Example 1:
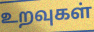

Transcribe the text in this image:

உறவுகள்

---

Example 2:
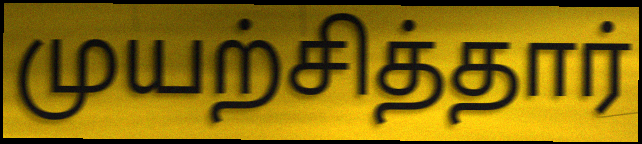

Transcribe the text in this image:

முயற்சித்தார்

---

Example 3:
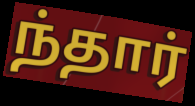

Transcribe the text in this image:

ந்தார்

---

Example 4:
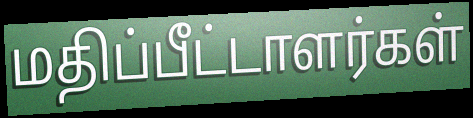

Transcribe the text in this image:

மதிப்பீட்டாளர்கள்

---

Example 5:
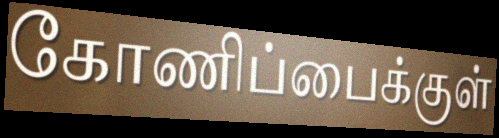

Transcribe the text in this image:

கோணிப்பைக்குள்